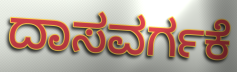
ದಾಸವರ್ಗಕೆ